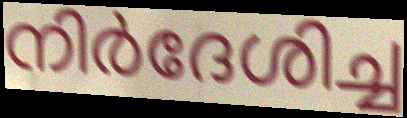
നിർദേശിച്ച